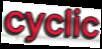
cyclic